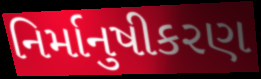
નિર્માનુષીકરણ